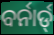
ବର୍ନାର୍ଡ୍